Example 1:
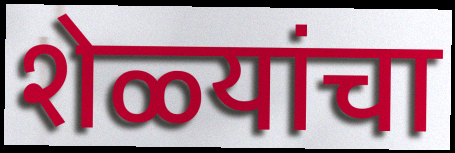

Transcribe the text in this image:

शेळ्यांचा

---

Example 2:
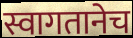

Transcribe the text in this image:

स्वागतानेच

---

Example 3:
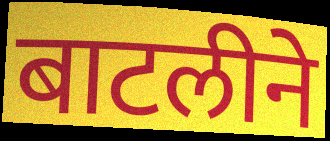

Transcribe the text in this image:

बाटलीने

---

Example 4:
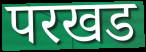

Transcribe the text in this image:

परखड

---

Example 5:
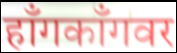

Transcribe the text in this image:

हाँगकाँगवर